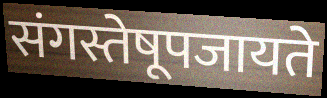
संगस्तेषूपजायते